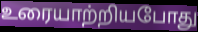
உரையாற்றியபோது